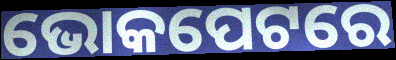
ଭୋକପେଟରେ